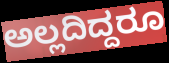
ಅಲ್ಲದಿದ್ದರೂ